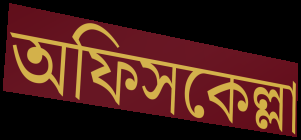
অফিসকেল্লা